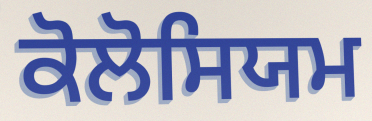
ਕੋਲੋਸਿਯਮ